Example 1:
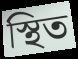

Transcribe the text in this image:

স্থিত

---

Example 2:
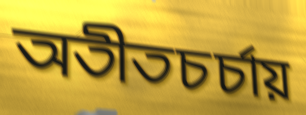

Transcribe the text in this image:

অতীতচর্চায়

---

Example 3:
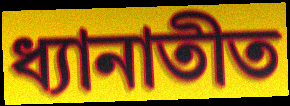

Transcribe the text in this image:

ধ্যানাতীত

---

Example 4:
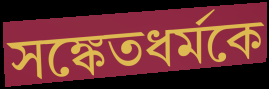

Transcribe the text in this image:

সঙ্কেতধর্মকে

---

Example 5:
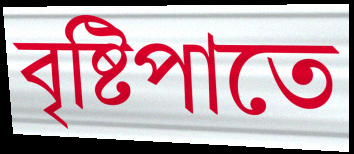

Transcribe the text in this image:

বৃষ্টিপাতে